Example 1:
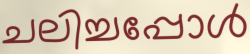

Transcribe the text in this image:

ചലിച്ചപ്പോൾ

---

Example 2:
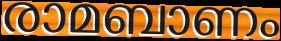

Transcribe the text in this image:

രാമബാണം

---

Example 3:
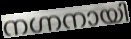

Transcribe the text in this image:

നഗ്നനായി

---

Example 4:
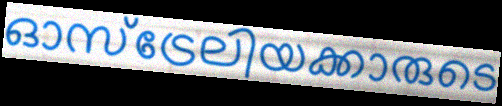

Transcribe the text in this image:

ഓസ്ട്രേലിയക്കാരുടെ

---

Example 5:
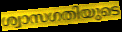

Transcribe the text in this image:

ശ്വാസഗതിയുടെ